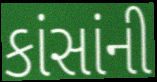
કાંસાંની